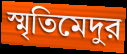
স্মৃতিমেদুর